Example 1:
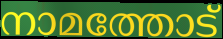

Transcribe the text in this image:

നാമത്തോട്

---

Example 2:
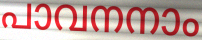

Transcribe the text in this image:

പാവനനാം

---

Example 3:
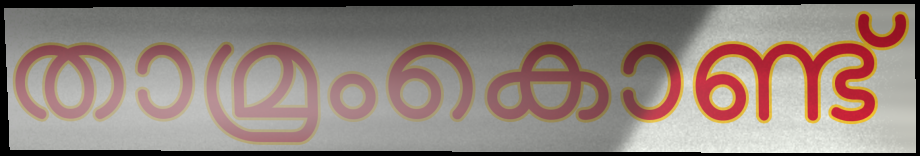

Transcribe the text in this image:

താമ്രംകൊണ്ട്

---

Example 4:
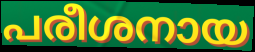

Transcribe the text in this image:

പരീശനായ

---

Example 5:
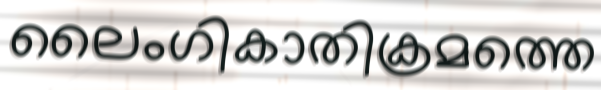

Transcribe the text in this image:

ലൈംഗികാതിക്രമത്തെ